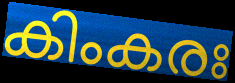
കിംകരഃ